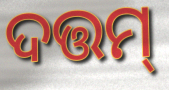
ଦତ୍ତମ୍